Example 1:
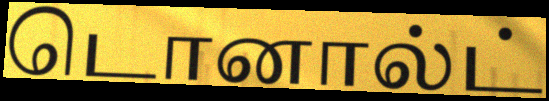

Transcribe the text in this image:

டொனால்ட்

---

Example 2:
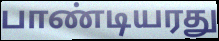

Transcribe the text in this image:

பாண்டியரது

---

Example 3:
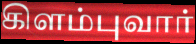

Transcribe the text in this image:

கிளம்புவார்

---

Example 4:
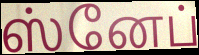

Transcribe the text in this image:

ஸ்னேப்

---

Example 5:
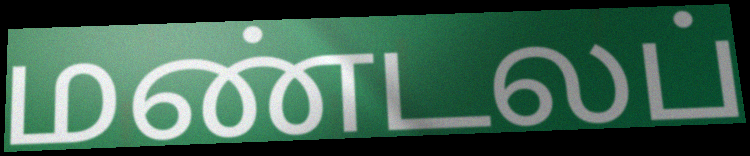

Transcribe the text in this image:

மண்டலப்